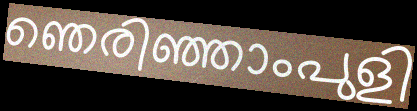
ഞെരിഞ്ഞാംപുളി